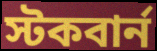
স্টকবার্ন